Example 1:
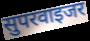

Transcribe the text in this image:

सुपरवाइजर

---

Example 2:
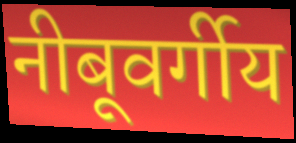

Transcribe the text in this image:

नीबूवर्गीय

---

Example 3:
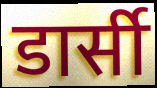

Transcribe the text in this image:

डार्सी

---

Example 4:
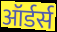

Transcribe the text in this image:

ऑर्डर्स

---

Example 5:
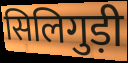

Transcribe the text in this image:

सिलिगुड़ी